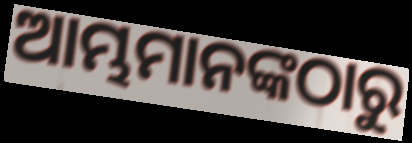
ଆମ୍ଭମାନଙ୍କଠାରୁ